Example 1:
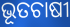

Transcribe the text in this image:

ଭୂତଚାଷୀ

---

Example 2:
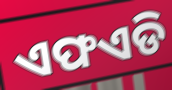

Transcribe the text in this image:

ଏଫଏଡି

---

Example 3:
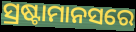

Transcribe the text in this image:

ସ୍ରଷ୍ଟାମାନସରେ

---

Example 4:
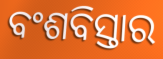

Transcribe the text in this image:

ବଂଶବିସ୍ତାର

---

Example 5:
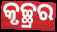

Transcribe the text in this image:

କୃଚ୍ଛ୍ରର